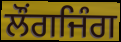
ਲੌਂਗਜਿੰਗ